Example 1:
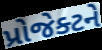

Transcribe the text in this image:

પ્રોજેક્ટને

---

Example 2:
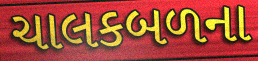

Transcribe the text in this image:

ચાલકબળના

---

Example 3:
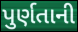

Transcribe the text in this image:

પુર્ણતાની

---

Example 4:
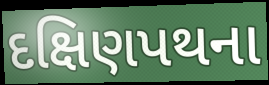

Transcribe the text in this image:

દક્ષિણપથના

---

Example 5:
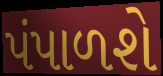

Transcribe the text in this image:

પંપાળશે